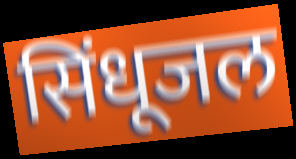
सिंधूजल